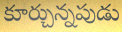
కూర్చున్నపుడు